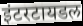
इंटरटायडल